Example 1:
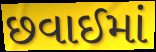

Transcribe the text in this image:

છવાઈમાં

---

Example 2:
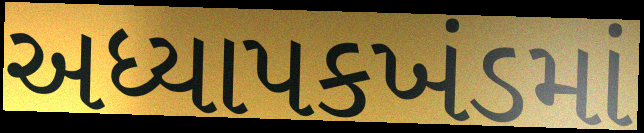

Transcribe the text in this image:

અધ્યાપકખંડમાં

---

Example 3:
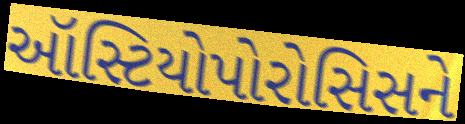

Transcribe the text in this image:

ઑસ્ટિયોપોરોસિસને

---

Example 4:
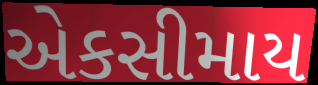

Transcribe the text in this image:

એકસીમાય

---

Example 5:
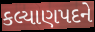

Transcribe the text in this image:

કલ્યાણપદને